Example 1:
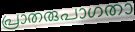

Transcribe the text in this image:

പ്രാതരുപാഗതാ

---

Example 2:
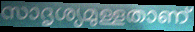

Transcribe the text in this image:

സാദൃശ്യമുള്ളതാണ്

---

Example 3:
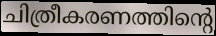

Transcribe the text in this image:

ചിത്രീകരണത്തിന്റെ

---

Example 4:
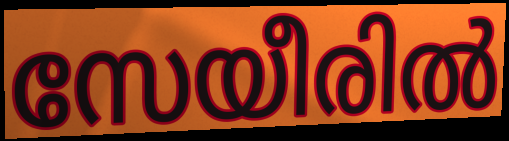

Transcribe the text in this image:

സേയീരിൽ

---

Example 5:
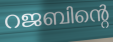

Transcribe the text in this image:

റജബിന്റെ